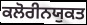
ਕਲੋਰੀਨਯੁਕਤ